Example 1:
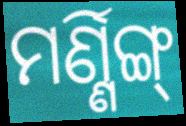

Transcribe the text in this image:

ମର୍ଣ୍ଣିଙ୍ଗ୍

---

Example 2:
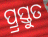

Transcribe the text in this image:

ପ୍ର୍ରସ୍ତୁତ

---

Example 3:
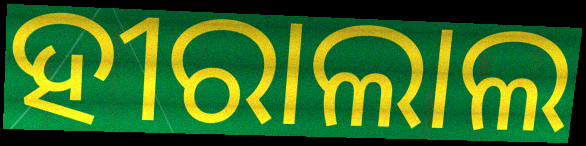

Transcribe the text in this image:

ହୀରାଲାଲ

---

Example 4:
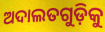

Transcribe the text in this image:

ଅଦାଲତଗୁଡ଼ିକୁ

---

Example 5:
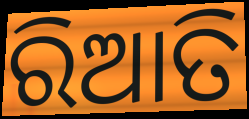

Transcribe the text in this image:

ରିଆତି